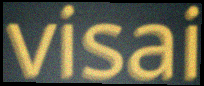
visai